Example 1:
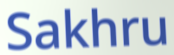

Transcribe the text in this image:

Sakhru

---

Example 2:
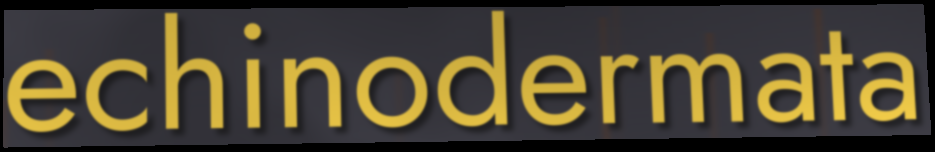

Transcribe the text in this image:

echinodermata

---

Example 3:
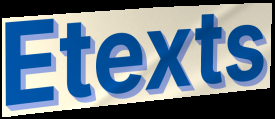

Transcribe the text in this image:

Etexts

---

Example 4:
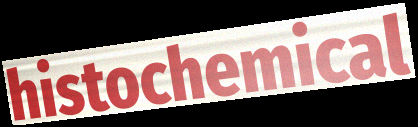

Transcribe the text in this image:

histochemical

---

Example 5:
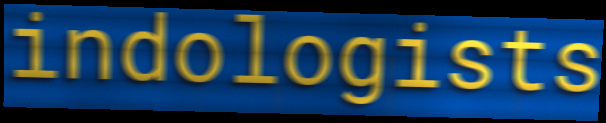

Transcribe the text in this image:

indologists